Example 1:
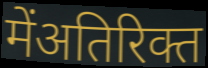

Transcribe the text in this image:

मेंअतिरिक्त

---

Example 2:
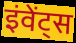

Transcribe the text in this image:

इंवेंट्स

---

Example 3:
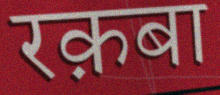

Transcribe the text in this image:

रक़बा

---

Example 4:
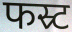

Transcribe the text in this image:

फस्र्ट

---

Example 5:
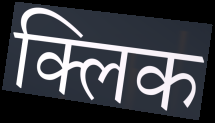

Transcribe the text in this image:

क्लिक